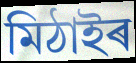
মিঠাইৰ